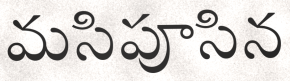
మసిపూసిన